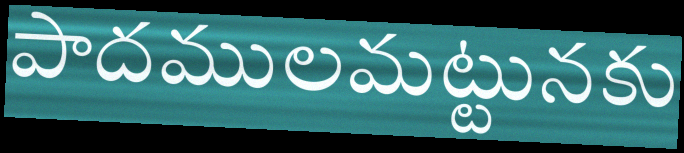
పాదములమట్టునకు